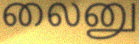
லைனு